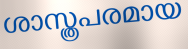
ശാസ്ത്രപരമായ